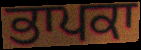
ਭਾਪਕਾ